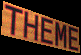
THEME